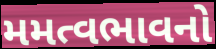
મમત્વભાવનો